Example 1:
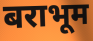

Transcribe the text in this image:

बराभूम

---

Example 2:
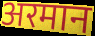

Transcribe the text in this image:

अरमान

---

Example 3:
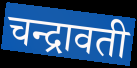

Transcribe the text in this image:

चन्द्रावती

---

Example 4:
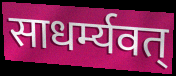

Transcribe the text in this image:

साधर्म्यवत्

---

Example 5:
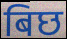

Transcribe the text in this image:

बिछ